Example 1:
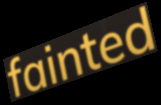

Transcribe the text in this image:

fainted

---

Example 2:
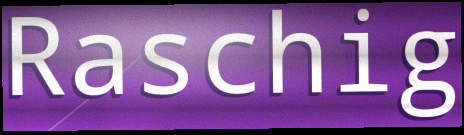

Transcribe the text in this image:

Raschig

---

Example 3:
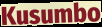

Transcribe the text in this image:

Kusumbo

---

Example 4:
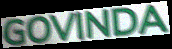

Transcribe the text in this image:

GOVINDA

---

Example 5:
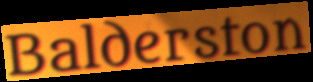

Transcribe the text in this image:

Balderston